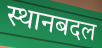
स्थानबदल